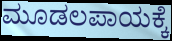
ಮೂಡಲಪಾಯಕ್ಕೆ